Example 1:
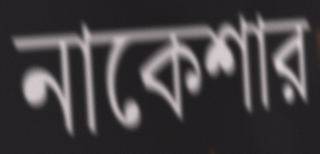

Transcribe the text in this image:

নাকেশার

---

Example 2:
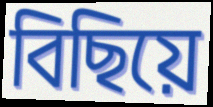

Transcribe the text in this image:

বিছিয়ে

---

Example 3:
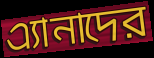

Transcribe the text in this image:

এ্যানাদের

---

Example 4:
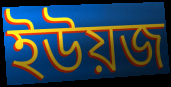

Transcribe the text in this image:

ইউয়জ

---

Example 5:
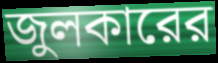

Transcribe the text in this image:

জুলকারের